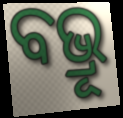
ବଭ୍ରୂ